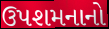
ઉપશમનાનો